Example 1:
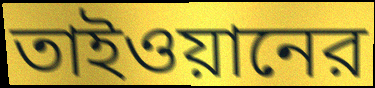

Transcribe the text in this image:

তাইওয়ানের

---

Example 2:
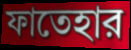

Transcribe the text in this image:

ফাতেহার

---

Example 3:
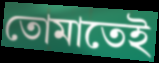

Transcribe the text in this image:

তোমাতেই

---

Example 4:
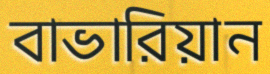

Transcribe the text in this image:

বাভারিয়ান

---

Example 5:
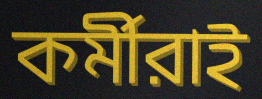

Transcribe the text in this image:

কর্মীরাই